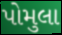
પોમુલા